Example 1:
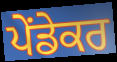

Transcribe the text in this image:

ਪੇਂਡੇਕਰ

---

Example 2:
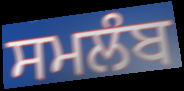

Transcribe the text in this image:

ਸਮਲੰਬ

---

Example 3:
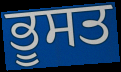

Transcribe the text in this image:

ਭੂਸਤ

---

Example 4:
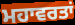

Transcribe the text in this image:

ਮਹਾਵਰਤਾਂ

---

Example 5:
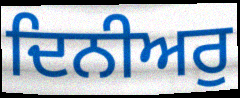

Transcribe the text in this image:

ਦਿਨੀਅਰੁ